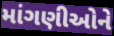
માંગણીઓને